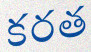
కరత